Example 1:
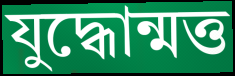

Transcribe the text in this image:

যুদ্ধোন্মত্ত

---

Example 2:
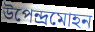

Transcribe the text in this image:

উপেন্দ্রমোহন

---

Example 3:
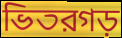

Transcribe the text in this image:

ভিতরগড়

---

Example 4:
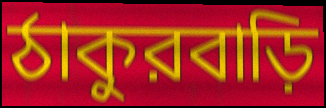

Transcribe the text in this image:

ঠাকুরবাড়ি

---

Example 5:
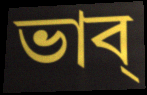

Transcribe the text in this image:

ভাব্